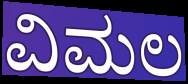
ವಿಮಲ